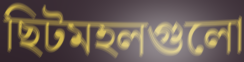
ছিটমহলগুলো